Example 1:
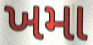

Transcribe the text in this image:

ખમા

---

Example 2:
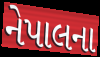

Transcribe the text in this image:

નેપાલના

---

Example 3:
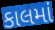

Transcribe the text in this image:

કાલમાં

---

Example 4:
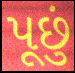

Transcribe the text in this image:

પૂછું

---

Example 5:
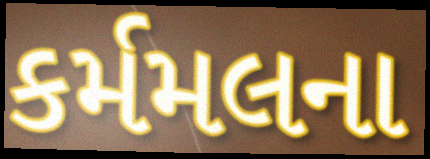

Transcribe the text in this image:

કર્મમલના